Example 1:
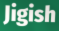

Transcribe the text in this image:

Jigish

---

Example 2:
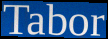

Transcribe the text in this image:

Tabor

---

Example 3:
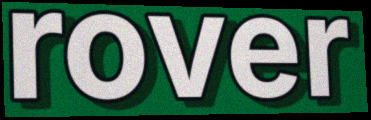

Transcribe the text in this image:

rover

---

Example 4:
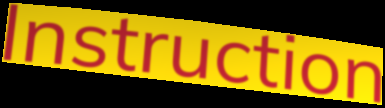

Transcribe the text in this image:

Instruction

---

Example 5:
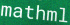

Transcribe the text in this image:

mathml